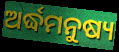
ଅର୍ଦ୍ଧମନୁଷ୍ୟ